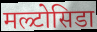
मल्टोसिडा